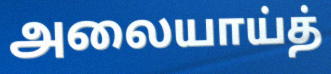
அலையாய்த்